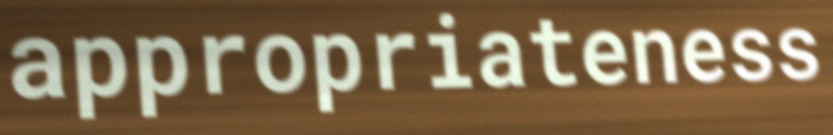
appropriateness